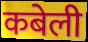
कबेली